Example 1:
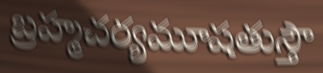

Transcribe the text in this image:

బ్రహ్మచర్యమూషతుస్తౌ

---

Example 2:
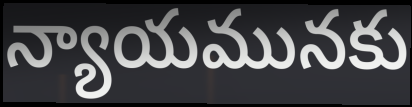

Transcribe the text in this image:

న్యాయమునకు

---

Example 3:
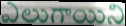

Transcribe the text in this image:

ఎలుగాయిని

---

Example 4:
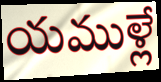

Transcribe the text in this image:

యముళ్లే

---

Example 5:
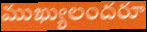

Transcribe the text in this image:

ముఖ్యులందరూ